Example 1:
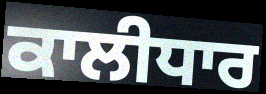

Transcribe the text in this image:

ਕਾਲੀਧਾਰ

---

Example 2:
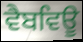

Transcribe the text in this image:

ਵੈਬਵਿਊ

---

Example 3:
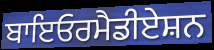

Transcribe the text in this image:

ਬਾਇਓਰਮੈਡੀਏਸ਼ਨ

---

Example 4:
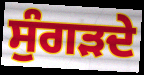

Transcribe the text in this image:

ਸੁੰਗੜਦੇ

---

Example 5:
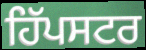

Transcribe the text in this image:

ਹਿੱਪਸਟਰ